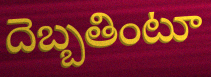
దెబ్బతింటూ